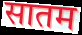
सातम